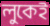
লুকেই